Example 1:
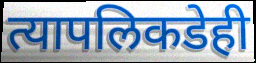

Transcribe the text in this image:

त्यापलिकडेही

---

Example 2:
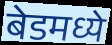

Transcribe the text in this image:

बेडमध्ये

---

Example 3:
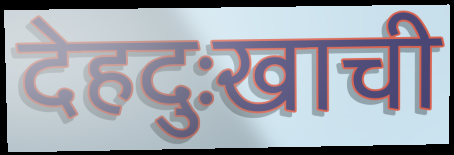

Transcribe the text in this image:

देहदुःखाची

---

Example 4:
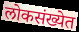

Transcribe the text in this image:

लोकसंख्येत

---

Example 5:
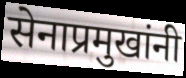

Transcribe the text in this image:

सेनाप्रमुखांनी